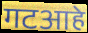
गटआहे